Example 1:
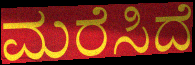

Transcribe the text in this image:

ಮರೆಸಿದೆ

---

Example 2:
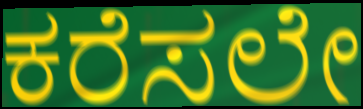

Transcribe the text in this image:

ಕರೆಸಲೇ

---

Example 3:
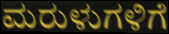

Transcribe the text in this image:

ಮರುಳುಗಳಿಗೆ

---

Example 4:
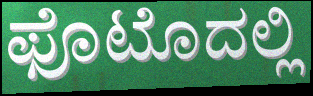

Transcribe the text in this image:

ಫೊಟೊದಲ್ಲಿ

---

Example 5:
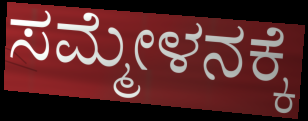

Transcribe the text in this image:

ಸಮ್ಮೇಳನಕ್ಕೆ